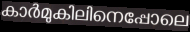
കാർമുകിലിനെപ്പോലെ